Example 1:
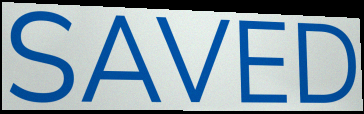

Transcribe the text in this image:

SAVED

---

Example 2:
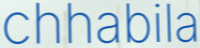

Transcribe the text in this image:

chhabila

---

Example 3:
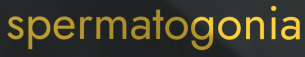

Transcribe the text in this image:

spermatogonia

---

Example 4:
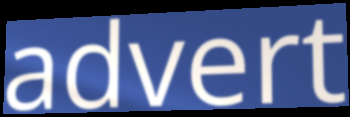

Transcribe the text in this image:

advert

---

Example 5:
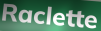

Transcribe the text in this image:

Raclette